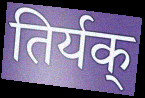
तिर्यक्